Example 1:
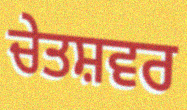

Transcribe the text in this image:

ਚੇਤਸ਼ਵਰ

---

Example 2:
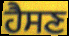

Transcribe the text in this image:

ਹੈਸਣ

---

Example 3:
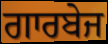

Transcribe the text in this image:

ਗਾਰਬੇਜ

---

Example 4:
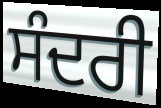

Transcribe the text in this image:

ਸੰਦਰੀ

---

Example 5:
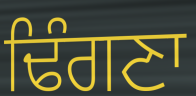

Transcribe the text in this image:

ਢਿੰਗਣਾ